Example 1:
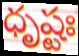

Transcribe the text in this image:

ధృష్టః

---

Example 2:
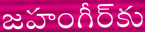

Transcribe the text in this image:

జహంగీర్‌కు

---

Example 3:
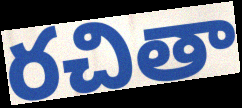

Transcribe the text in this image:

రచితా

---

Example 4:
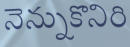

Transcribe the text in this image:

నెన్నుకొనిరి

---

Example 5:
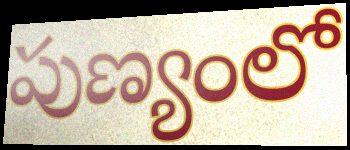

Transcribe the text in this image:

పుణ్యంలో